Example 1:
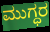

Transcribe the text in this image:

ಮುಗ್ಧರ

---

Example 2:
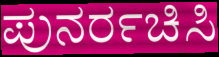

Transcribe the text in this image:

ಪುನರ್ರಚಿಸಿ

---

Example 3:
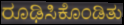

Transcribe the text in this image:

ರೂಢಿಸಿಕೊಂಡಿತು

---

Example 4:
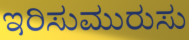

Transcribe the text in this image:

ಇರಿಸುಮುರುಸು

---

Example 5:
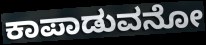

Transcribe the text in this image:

ಕಾಪಾಡುವನೋ